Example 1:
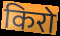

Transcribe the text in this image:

किरो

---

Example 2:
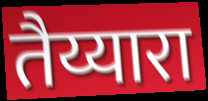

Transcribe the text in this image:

तैय्यारा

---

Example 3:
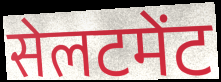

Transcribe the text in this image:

सेलटमेंट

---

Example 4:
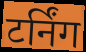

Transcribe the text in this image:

टर्निंग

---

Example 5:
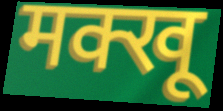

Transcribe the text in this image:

मक्खू